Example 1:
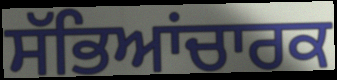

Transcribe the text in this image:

ਸੱਭਿਆਂਚਾਰਕ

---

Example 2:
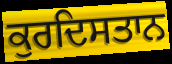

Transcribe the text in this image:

ਕੁਰਦਿਸਤਾਨ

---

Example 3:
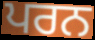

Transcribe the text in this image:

ਪਰਨ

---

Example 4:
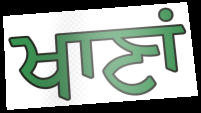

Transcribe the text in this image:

ਖਾਣਾਂ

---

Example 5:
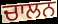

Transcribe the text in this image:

ਚਾਲਨ